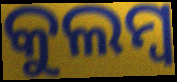
କୁଲମ୍ବ